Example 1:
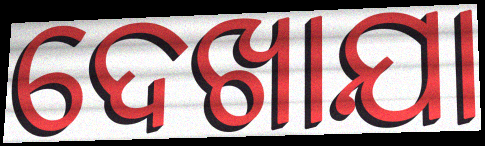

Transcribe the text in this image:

ଦେଖାଯା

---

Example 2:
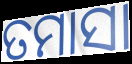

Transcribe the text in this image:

ତମାସା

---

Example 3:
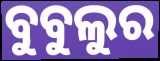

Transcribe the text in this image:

ବୁବୁଲୁର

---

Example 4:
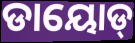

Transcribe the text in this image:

ଡାୟୋଡ୍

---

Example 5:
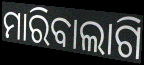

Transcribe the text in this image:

ମାରିବାଲାଗି